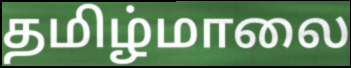
தமிழ்மாலை